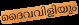
ദൈവവിളിയും